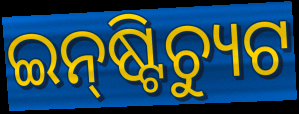
ଇନ୍‍ଷ୍ଟିଚ୍ୟୁଟ